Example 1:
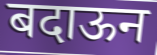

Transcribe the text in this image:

बदाऊन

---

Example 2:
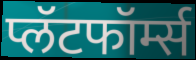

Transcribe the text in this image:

प्लॅटफॉर्म्स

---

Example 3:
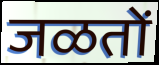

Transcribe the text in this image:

जळतों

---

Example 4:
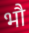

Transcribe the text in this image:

भौ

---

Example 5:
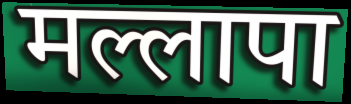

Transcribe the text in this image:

मल्लापा